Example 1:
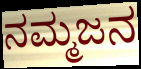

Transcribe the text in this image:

ನಮ್ಮಜನ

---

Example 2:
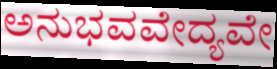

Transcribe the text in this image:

ಅನುಭವವೇದ್ಯವೇ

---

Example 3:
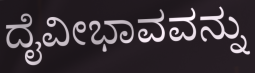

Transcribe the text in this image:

ದೈವೀಭಾವವನ್ನು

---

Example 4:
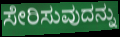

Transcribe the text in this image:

ಸೇರಿಸುವುದನ್ನು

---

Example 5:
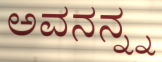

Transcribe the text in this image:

ಅವನನ್ನ್ನ